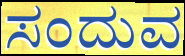
ಸಂದುವ